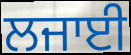
ਲਜਾਈ